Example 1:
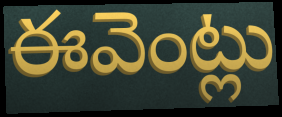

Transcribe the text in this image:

ఈవెంట్లు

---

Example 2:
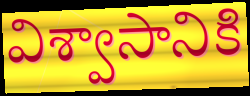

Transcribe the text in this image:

విశ్వాసానికి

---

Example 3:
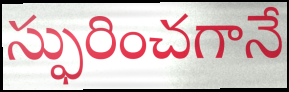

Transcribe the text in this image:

స్ఫురించగానే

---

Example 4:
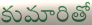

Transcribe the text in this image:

కుమారితో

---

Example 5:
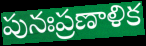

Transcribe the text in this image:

పునఃప్రణాళిక